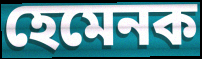
হেমেনক